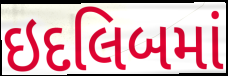
ઇદલિબમાં